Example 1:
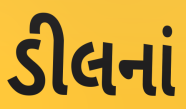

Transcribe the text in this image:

ડીલનાં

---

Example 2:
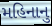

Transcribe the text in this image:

મહિનાનુ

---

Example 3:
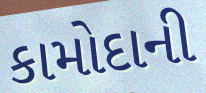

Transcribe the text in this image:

કામોદાની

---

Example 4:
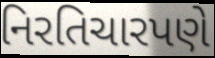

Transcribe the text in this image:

નિરતિચારપણે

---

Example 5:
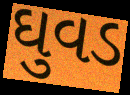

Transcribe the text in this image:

ઘુવડ